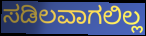
ಸಡಿಲವಾಗಲಿಲ್ಲ